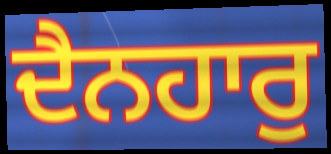
ਦੈਨਹਾਰੁ